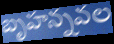
బృహన్నవల